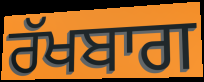
ਰੱਖਬਾਗ